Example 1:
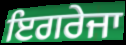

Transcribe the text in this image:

ਇਗਰੇਜਾ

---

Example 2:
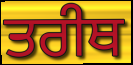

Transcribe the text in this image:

ਤਰੀਥ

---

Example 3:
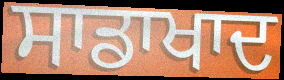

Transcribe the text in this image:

ਸਾਡਾਖਾਦ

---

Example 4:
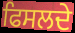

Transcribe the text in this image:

ਫਿਸਲਦੇ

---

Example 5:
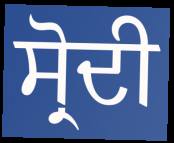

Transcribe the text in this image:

ਸ੍ਰੋਦੀ